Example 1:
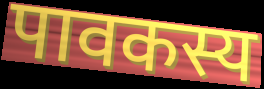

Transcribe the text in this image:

पावकस्य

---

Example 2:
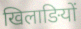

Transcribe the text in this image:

खिलाङियों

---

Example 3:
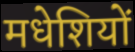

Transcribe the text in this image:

मधेशियों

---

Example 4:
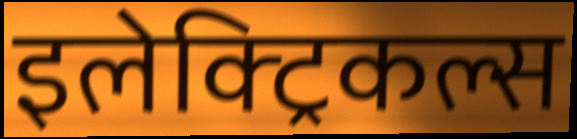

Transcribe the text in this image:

इलेक्ट्रिकल्‍स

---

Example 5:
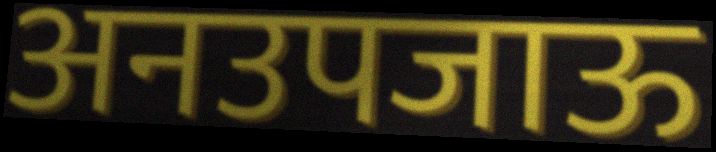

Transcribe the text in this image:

अनउपजाऊ